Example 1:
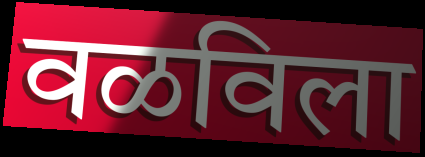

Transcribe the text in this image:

वळविला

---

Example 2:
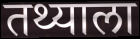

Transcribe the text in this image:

तथ्याला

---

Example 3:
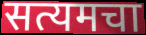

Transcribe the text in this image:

सत्यमचा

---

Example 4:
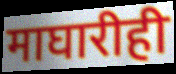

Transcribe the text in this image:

माघारीही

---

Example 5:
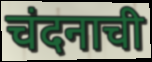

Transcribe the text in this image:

चंदनाची